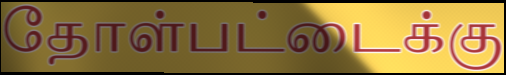
தோள்பட்டைக்கு